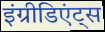
इंग्रीडिएंट्स